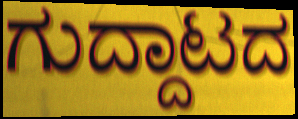
ಗುದ್ದಾಟದ